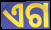
ଏଗ